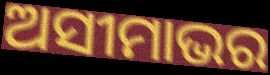
ଅସୀମାଭର